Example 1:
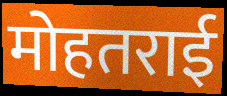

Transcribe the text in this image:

मोहतराई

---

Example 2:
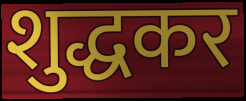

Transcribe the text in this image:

शुद्धकर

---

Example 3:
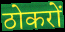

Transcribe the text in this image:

ठोकरों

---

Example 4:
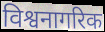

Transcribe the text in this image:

विश्वनागरिक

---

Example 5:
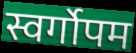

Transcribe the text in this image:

स्वर्गोपम